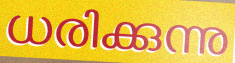
ധരിക്കുന്നു